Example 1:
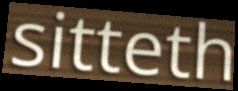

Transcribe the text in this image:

sitteth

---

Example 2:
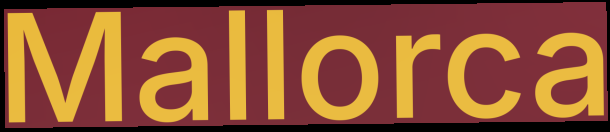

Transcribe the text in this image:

Mallorca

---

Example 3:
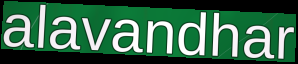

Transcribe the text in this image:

alavandhar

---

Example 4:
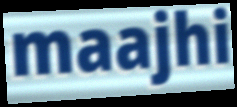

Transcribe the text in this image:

maajhi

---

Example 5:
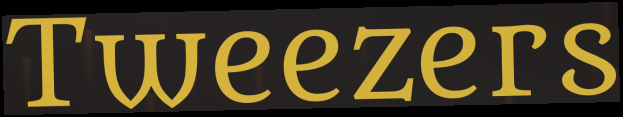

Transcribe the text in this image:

Tweezers